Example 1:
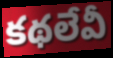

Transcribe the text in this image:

కథలేవీ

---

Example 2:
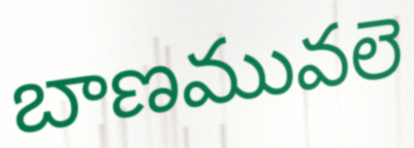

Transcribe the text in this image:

బాణమువలె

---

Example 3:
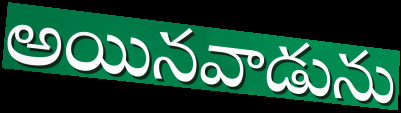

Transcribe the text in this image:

అయినవాడును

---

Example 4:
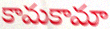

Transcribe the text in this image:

కామకామా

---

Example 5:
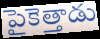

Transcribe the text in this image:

పైకెత్తాడు